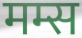
मम्स